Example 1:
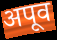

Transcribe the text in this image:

अपूव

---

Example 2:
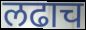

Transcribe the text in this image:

लढाच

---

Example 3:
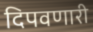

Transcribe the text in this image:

दिपवणारी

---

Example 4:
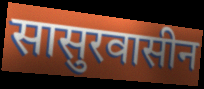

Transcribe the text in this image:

सासुरवासीन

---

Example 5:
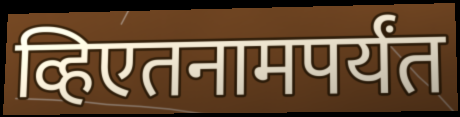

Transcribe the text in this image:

व्हिएतनामपर्यंत